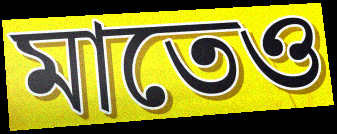
মাতেও